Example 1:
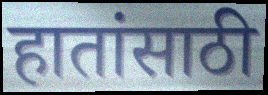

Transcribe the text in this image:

हातांसाठी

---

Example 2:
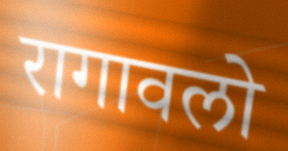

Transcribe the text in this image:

रागावलो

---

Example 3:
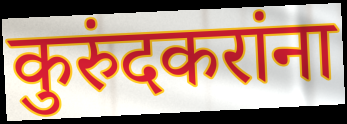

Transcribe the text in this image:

कुरुंदकरांना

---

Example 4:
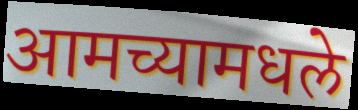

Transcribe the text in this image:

आमच्यामधले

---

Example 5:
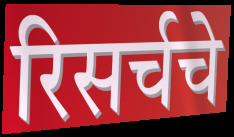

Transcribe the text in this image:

रिसर्चचे